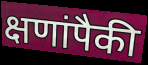
क्षणांपैकी